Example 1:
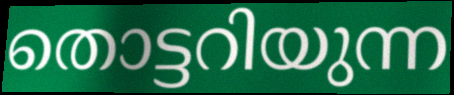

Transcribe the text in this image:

തൊട്ടറിയുന്ന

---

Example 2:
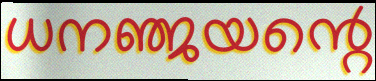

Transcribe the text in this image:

ധനഞ്ജയന്റെ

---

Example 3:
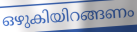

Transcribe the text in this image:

ഒഴുകിയിറങ്ങണം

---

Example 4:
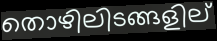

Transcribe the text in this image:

തൊഴിലിടങ്ങളില്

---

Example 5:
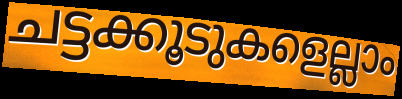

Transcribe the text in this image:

ചട്ടക്കൂടുകളെല്ലാം